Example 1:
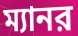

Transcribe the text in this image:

ম্যানর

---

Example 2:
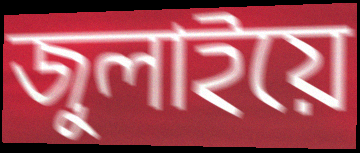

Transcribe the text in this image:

জুলাইয়ে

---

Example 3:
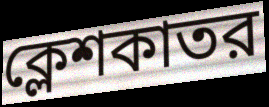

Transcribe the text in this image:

ক্লেশকাতর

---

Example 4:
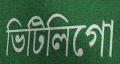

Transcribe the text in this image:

ভিটিলিগো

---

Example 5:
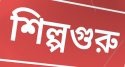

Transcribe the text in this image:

শিল্পগুরু